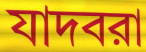
যাদবরা